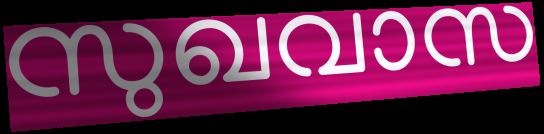
സുഖവാസ